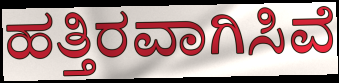
ಹತ್ತಿರವಾಗಿಸಿವೆ